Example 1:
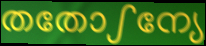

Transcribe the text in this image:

തതോഽന്യേ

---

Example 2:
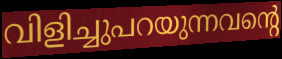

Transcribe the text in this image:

വിളിച്ചുപറയുന്നവന്റെ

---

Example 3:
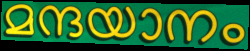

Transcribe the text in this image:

മന്ദയാനം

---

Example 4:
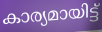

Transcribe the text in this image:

കാര്യമായിട്ട്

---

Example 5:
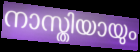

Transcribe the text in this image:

നാസ്തിയായും